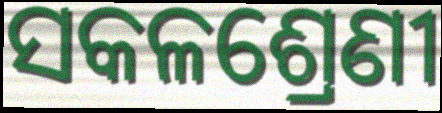
ସକଳଶ୍ରେଣୀ